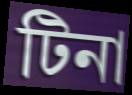
টিনা